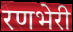
रणभेरी